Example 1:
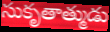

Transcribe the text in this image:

సుకృతాత్ముడు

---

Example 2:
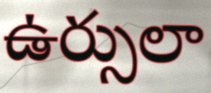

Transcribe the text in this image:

ఉర్సులా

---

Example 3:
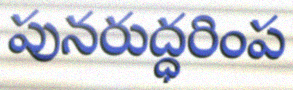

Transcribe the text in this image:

పునరుద్ధరింప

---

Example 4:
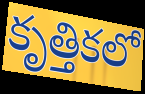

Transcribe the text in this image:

కృత్తికలో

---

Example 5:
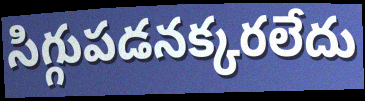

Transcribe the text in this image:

సిగ్గుపడనక్కరలేదు